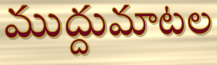
ముద్దుమాటల